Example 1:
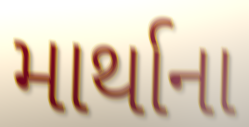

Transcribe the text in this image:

માર્થાના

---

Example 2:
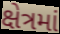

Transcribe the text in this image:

ક્ષેત્રમાં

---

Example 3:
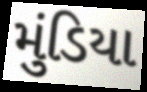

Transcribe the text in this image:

મુંડિયા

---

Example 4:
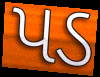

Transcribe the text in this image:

પડ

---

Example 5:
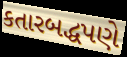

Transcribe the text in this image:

કતારબદ્ધપણે